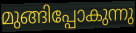
മുങ്ങിപ്പോകുന്നു